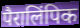
पैरालिंपिक